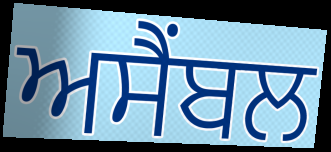
ਅਸੈਂਬਲ